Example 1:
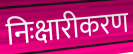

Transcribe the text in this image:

निःक्षारीकरण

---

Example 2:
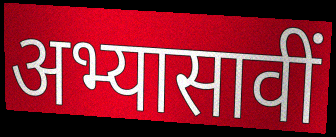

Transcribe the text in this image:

अभ्यासावीं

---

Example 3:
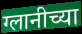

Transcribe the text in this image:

ग्लानीच्या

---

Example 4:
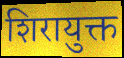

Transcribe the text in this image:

शिरायुक्त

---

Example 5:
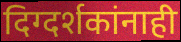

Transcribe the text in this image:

दिग्दर्शकांनाही